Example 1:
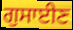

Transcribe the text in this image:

ਗੁਸਾਈਣ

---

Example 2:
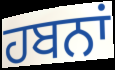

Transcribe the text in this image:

ਹਬਨਾਂ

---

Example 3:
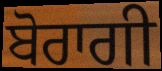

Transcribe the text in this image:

ਬੋਰਾਗੀ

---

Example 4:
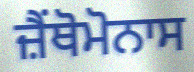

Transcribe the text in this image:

ਜ਼ੈਂਥੋਮੋਨਾਸ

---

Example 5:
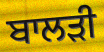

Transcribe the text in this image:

ਬਾਲੜੀ